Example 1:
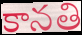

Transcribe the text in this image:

కానతి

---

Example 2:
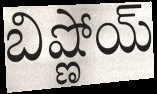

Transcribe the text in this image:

బిష్ణోయ్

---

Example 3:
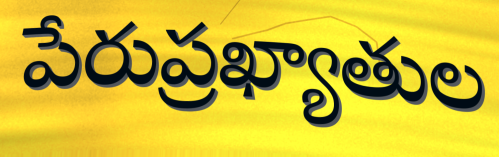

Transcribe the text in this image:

పేరుప్రఖ్యాతుల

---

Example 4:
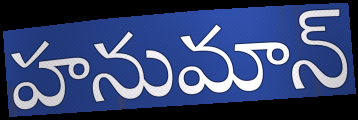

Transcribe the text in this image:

హనుమాన్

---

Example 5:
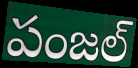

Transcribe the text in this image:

పంజల్